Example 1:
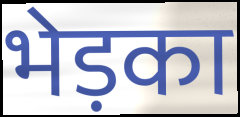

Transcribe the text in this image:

भेड़का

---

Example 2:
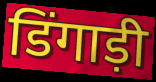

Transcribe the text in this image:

डिंगाड़ी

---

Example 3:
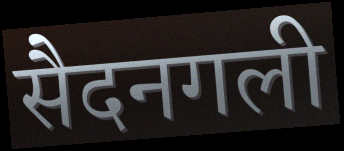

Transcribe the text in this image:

सैदनगली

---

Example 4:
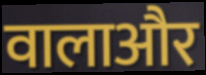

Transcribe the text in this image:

वालाऔर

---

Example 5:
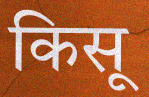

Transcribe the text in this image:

किसू